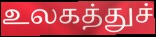
உலகத்துச்